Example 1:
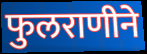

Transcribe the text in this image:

फुलराणीने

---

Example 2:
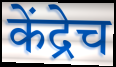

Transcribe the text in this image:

केंद्रेच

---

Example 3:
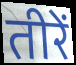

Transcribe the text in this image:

तीरें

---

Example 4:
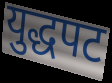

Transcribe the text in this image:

युद्धपट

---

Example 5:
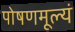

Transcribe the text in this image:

पोषणमूल्यं